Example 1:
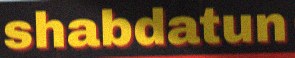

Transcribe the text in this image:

shabdatun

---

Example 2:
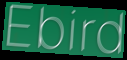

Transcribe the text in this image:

Ebird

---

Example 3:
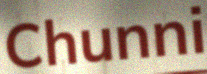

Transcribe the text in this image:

Chunni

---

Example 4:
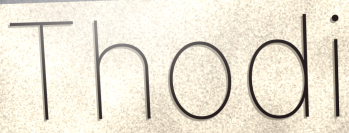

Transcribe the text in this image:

Thodi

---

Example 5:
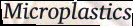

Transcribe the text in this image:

Microplastics